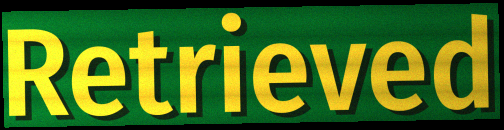
Retrieved